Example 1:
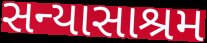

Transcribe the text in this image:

સન્યાસાશ્રમ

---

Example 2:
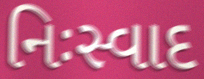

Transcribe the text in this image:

નિઃસ્વાદ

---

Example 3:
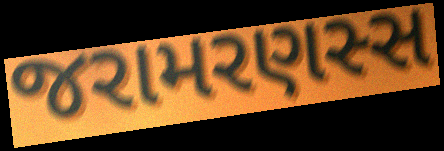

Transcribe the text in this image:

જરામરણસ્સ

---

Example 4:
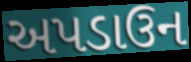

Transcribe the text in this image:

અપડાઉન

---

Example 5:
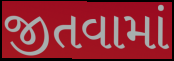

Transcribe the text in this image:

જીતવામાં